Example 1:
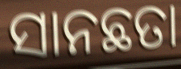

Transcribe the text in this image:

ସାନଛତା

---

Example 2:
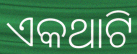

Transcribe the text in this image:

ଏକଥାଟି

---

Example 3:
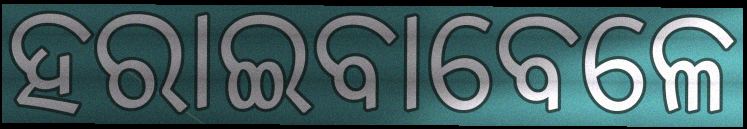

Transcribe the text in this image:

ହରାଇବାବେଳେ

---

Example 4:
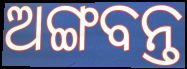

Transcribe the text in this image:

ଅଙ୍ଗବନ୍ତ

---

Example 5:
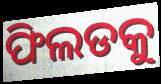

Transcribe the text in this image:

ଫିଲଡକୁ